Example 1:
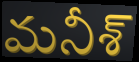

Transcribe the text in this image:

మనీశ్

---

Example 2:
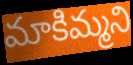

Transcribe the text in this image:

మాకిమ్మని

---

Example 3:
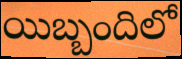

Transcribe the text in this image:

యిబ్బందిలో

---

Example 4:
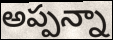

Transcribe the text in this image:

అప్పన్నా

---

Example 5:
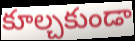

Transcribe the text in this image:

కూల్చకుండా